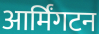
आर्मिंगटन